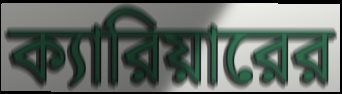
ক্যারিয়ারের